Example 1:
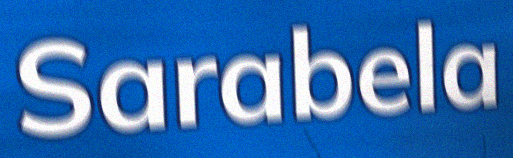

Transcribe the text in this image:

Sarabela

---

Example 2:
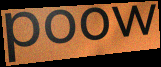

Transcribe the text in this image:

poow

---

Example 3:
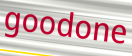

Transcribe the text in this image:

goodone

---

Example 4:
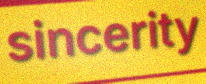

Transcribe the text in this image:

sincerity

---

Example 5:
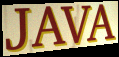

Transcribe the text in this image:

JAVA